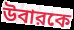
উবারকে